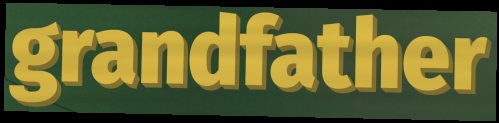
grandfather